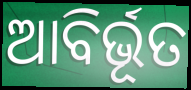
ଆବିର୍ଭୂତ